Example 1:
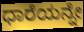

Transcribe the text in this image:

ಧಾರೆಯನ್ನೇ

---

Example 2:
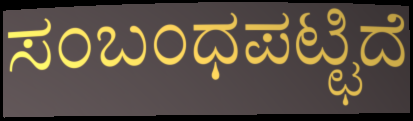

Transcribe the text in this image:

ಸಂಬಂಧಪಟ್ಟಿದೆ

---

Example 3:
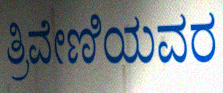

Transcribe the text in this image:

ತ್ರಿವೇಣಿಯವರ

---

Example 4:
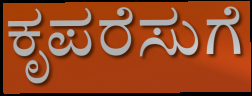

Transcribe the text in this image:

ಕೃಪರೆಸುಗೆ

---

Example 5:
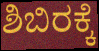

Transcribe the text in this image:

ಶಿಬಿರಕ್ಕೆ